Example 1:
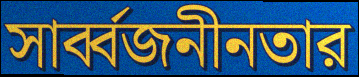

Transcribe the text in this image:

সার্ব্বজনীনতার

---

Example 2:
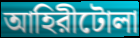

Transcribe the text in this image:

আহিরীটোলা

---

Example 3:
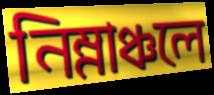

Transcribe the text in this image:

নিম্নাঞ্চলে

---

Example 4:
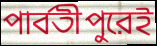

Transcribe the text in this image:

পার্বতীপুরেই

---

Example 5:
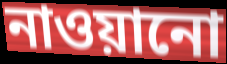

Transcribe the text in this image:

নাওয়ানো